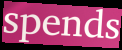
spends